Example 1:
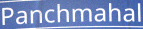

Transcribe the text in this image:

Panchmahal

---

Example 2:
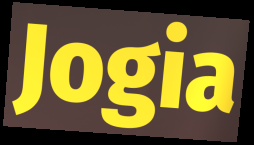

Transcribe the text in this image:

Jogia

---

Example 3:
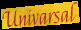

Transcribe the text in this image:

Univarsal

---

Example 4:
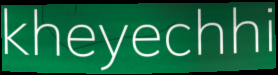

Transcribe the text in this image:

kheyechhi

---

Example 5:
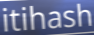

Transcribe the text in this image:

itihash